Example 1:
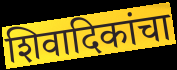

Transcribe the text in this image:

शिवादिकांचा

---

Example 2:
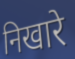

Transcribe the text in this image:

निखारे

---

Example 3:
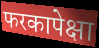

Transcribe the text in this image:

फरकापेक्षा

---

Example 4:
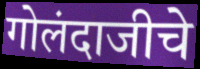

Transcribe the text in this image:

गोलंदाजीचे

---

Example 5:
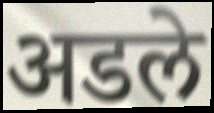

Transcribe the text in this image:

अडले